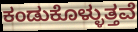
ಕಂಡುಕೊಳ್ಳುತ್ತವೆ